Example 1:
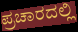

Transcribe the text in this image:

ಪ್ರಚಾರದಲ್ಲಿ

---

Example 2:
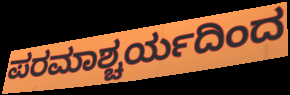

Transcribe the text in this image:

ಪರಮಾಶ್ಚರ್ಯದಿಂದ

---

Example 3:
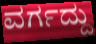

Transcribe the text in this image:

ವರ್ಗದ್ದು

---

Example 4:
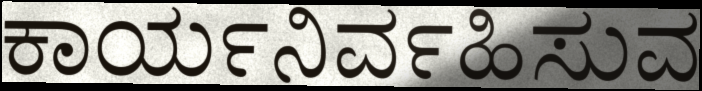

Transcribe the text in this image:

ಕಾರ್ಯನಿರ್ವಹಿಸುವ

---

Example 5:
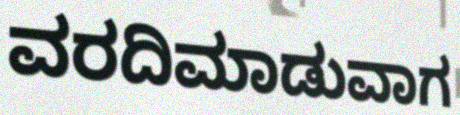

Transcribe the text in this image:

ವರದಿಮಾಡುವಾಗ